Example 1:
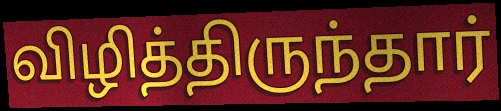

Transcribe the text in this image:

விழித்திருந்தார்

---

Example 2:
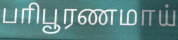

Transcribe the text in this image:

பரிபூரணமாய்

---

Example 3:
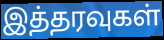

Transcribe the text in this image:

இத்தரவுகள்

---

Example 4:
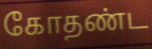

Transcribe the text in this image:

கோதண்ட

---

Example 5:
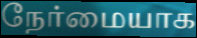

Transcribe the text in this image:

நேர்மையாக